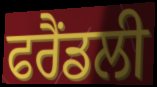
ਫਰੈਂਡਲੀ